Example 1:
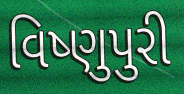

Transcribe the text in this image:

વિષ્ણુપુરી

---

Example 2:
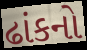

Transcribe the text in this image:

ઢાંકનો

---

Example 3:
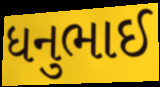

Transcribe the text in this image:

ધનુભાઈ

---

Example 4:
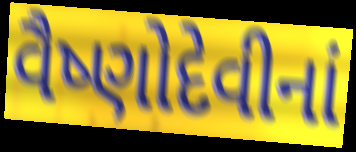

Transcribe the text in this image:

વૈષ્ણોદેવીનાં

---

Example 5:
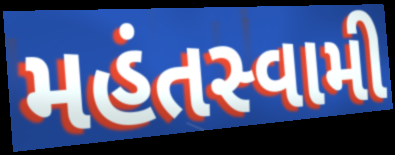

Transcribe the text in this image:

મહંતસ્વામી